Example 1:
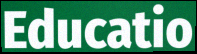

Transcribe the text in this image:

Educatio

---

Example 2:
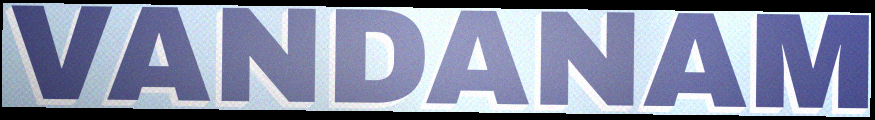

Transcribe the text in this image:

VANDANAM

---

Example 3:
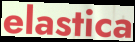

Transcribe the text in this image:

elastica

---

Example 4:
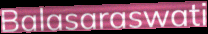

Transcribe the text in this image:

Balasaraswati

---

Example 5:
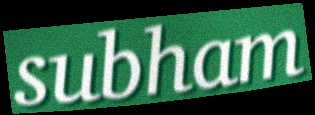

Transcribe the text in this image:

subham